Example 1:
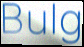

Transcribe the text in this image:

Bulg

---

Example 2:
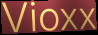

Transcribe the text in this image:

Vioxx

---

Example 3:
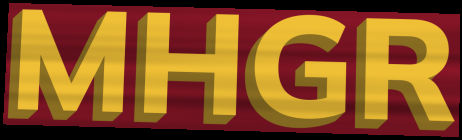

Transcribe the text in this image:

MHGR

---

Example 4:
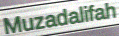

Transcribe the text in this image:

Muzadalifah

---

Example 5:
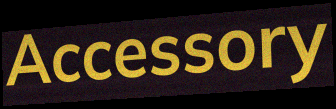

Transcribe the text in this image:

Accessory